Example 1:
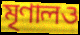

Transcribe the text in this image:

মৃণালও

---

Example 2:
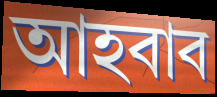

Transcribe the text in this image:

আহবাব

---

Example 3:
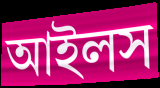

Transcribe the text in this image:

আইলস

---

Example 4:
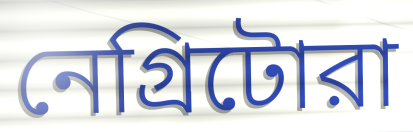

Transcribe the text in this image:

নেগ্রিটোরা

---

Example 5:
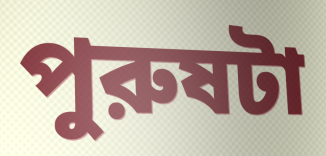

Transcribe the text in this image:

পুরুষটা